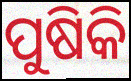
ପୁଷିକି